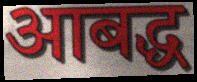
आबद्ध